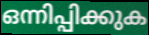
ഒന്നിപ്പിക്കുക